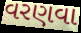
વરણવા